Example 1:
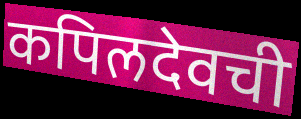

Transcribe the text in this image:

कपिलदेवची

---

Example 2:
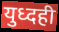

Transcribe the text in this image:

युध्दही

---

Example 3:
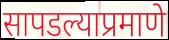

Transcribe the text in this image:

सापडल्याप्रमाणे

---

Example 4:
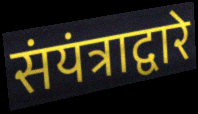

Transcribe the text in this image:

संयंत्राद्वारे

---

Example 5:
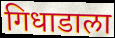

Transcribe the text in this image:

गिधाडाला